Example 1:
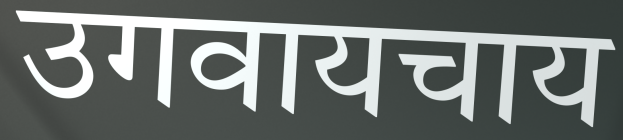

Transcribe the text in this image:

उगवायचाय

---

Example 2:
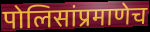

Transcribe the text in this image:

पोलिसांप्रमाणेच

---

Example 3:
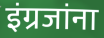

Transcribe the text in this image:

इंग्रजांना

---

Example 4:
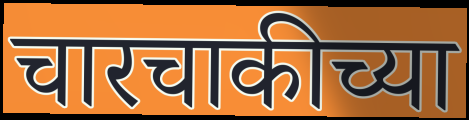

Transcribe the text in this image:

चारचाकीच्या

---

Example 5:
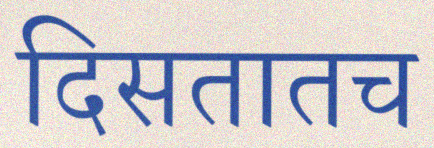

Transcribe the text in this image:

दिसतातच